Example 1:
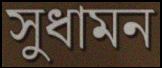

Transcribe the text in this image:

সুধামন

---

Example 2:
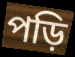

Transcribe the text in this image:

পড়ি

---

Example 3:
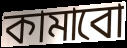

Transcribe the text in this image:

কামাবো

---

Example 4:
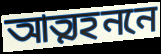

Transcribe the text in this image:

আত্মহননে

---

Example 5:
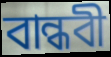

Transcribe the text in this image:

বান্ধবী